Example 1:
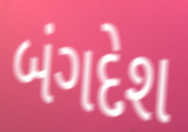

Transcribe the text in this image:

બંગદેશ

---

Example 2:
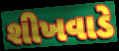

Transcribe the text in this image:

શીખવાડે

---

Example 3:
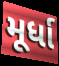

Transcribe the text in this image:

મૂર્ધા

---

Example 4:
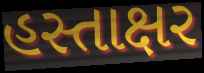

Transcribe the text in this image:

હસ્તાક્ષર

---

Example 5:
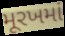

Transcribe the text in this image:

મૂરખમાં